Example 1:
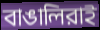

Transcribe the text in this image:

বাঙালিরাই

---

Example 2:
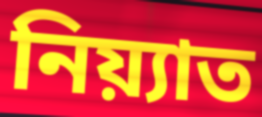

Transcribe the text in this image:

নিয়্যাত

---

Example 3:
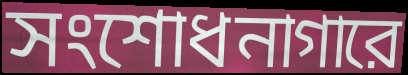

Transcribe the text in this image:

সংশোধনাগারে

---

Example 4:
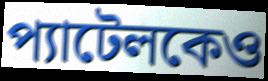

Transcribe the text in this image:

প্যাটেলকেও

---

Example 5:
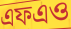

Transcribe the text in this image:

এফএও